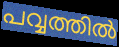
പവ്വത്തിൽ